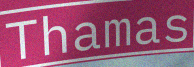
Thamas